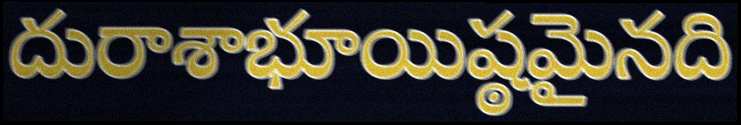
దురాశాభూయిష్ఠమైనది